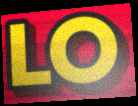
LO